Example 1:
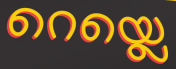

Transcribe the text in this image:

റെയ്ലെ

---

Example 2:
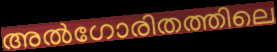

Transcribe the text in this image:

അൽഗോരിതത്തിലെ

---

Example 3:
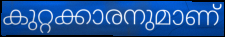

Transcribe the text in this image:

കുറ്റക്കാരനുമാണ്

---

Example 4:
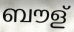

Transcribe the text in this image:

ബൗള്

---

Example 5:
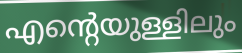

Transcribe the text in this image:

എന്റെയുള്ളിലും